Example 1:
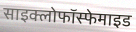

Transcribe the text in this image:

साइक्लोफॉस्फेमाइड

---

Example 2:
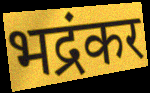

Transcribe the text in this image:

भद्रंकर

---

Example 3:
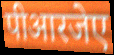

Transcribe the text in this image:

पीआरजेए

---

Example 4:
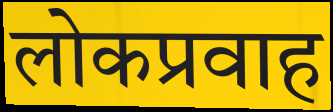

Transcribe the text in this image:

लोकप्रवाह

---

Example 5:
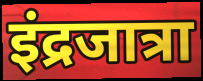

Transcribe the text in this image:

इंद्रजात्रा